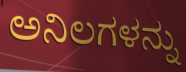
ಅನಿಲಗಳನ್ನು